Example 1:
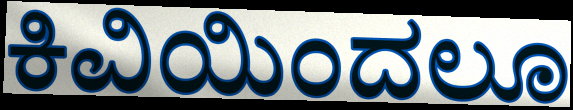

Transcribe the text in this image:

ಕಿವಿಯಿಂದಲೂ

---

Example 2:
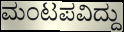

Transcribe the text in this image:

ಮಂಟಪವಿದ್ದು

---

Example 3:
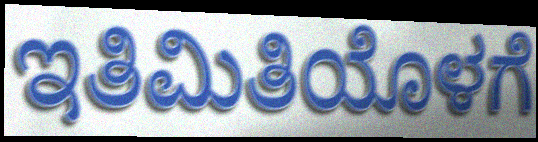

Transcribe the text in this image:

ಇತಿಮಿತಿಯೊಳಗೆ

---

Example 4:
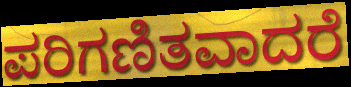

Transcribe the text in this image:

ಪರಿಗಣಿತವಾದರೆ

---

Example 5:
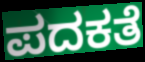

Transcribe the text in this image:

ಪದಕತೆ